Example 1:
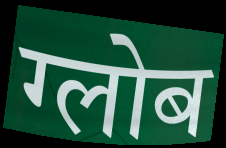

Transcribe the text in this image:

ग्‍लोब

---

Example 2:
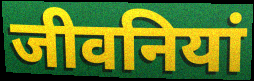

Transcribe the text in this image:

जीवनियां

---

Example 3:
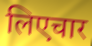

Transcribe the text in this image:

लिएचार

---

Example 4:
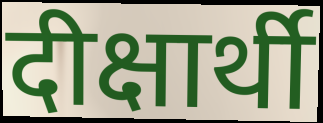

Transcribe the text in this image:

दीक्षार्थी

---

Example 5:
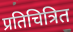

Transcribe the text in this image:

प्रतिचित्रित